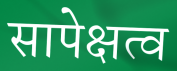
सापेक्षत्व